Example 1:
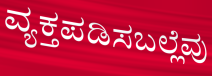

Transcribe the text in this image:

ವ್ಯಕ್ತಪಡಿಸಬಲ್ಲೆವು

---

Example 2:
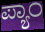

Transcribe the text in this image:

ಪ್ಯಾಂ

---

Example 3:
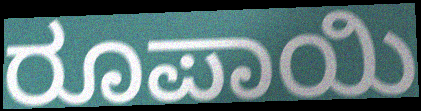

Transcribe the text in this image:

ರೂಪಾಯಿ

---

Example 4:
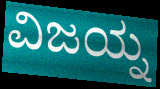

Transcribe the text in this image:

ವಿಜಯ್ನ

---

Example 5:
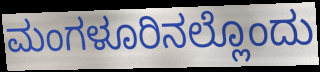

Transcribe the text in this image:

ಮಂಗಳೂರಿನಲ್ಲೊಂದು